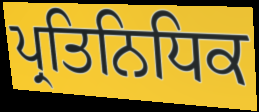
ਪ੍ਰਤਿਨਿਧਿਕ